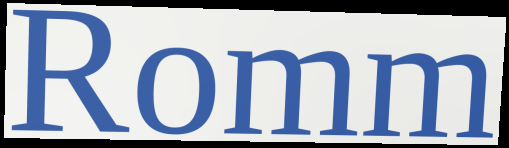
Romm